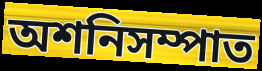
অশনিসম্পাত